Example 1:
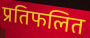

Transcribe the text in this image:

प्रतिफलित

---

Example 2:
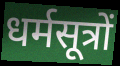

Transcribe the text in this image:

धर्मसूत्रों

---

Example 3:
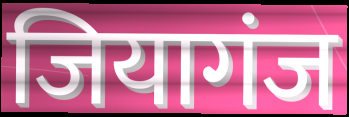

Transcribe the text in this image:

जियागंज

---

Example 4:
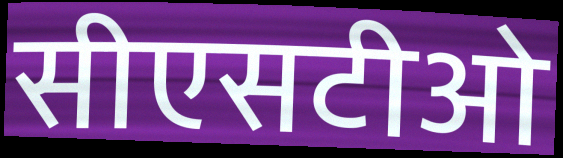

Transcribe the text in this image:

सीएसटीओ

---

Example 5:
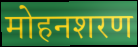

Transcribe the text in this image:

मोहनशरण